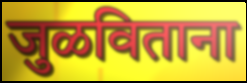
जुळविताना